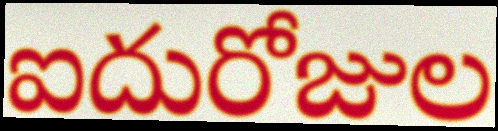
ఐదురోజుల